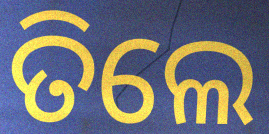
ତିଲେ